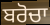
ਬਰੋਚਾ